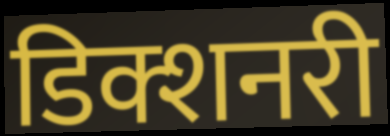
डिक्‍शनरी